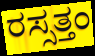
ರಸ್ಸತ್ತಂ